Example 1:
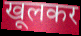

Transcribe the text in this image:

खूलकर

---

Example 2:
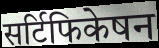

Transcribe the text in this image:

सर्टिफिकेषन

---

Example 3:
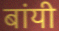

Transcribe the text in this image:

बांयी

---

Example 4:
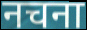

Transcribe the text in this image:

नचना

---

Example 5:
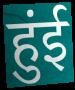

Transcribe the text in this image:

हुंई